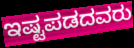
ಇಷ್ಟಪಡದವರು